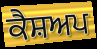
ਕੈਸ਼ਅਪ